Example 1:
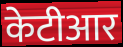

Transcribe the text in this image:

केटीआर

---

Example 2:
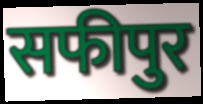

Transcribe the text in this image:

सफीपुर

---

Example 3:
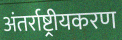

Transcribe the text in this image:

अंतर्राष्ट्रीयकरण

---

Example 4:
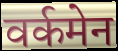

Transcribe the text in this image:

वर्कमेन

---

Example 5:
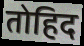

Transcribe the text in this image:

तोहिद